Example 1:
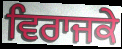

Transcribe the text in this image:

ਵਿਰਾਜਕੇ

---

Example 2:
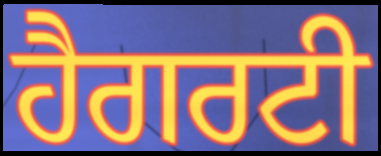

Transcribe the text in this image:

ਹੈਗਰਟੀ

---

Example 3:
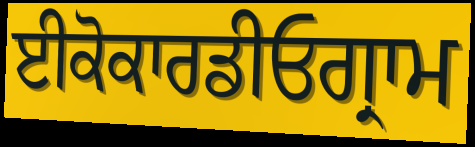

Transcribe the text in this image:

ਈਕੋਕਾਰਡੀਓਗ੍ਰਾਮ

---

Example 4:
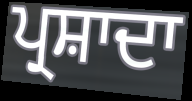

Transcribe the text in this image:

ਪ੍ਰਸ਼ਾਦਾ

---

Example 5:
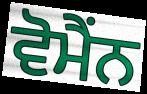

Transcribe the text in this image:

ਵੋਮੈਂਨ